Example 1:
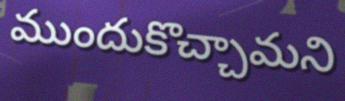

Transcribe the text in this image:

ముందుకొచ్చామని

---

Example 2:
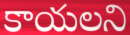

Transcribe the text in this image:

కాయలని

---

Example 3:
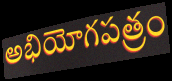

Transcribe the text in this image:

అభియోగపత్రం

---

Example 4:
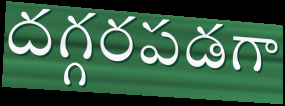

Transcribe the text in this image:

దగ్గరపడగా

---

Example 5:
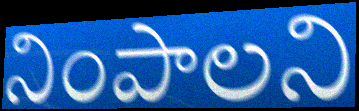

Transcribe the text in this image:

నింపాలని